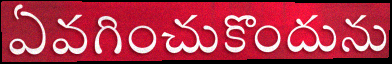
ఏవగించుకొందును